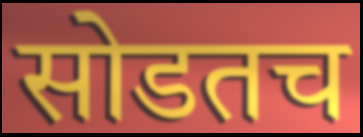
सोडतच